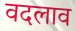
वदलाव